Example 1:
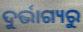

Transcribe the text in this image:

ଦୁର୍ଭାଗ୍ୟରୁ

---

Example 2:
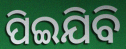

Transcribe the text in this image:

ପିଇଯିବି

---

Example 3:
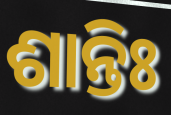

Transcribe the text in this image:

ଶାନ୍ତିଃ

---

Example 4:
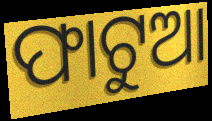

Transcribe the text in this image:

ଫାଟୁଆ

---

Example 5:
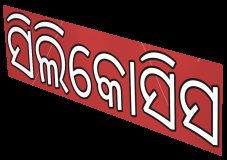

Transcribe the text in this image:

ସିଲିକୋସିସ